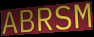
ABRSM